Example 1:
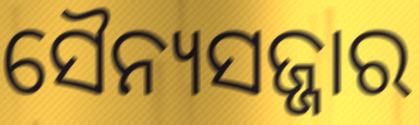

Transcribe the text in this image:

ସୈନ୍ୟସଜ୍ଜାର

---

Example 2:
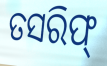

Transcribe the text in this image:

ତସରିଫ୍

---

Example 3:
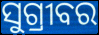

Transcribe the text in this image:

ସୁଗ୍ରୀବର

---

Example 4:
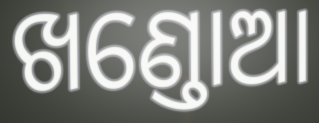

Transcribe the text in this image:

ଖଣ୍ଡୋଆ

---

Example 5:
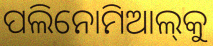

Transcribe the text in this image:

ପଲିନୋମିଆଲ୍‌କୁ